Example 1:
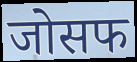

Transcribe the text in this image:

जोसफ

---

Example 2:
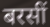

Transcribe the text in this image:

बरसीं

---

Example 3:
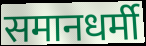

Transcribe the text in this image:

समानधर्मी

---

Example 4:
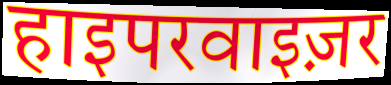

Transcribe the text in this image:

हाइपरवाइज़र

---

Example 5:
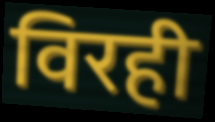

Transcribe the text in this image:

विरही